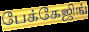
பேக்கேஜிங்